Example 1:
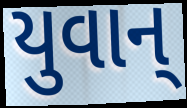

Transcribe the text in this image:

યુવાન્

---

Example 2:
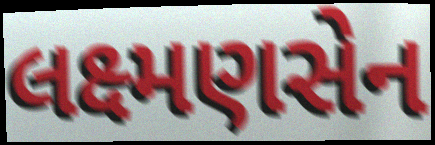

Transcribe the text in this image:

લક્ષ્મણસેન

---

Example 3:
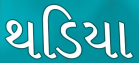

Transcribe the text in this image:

થડિયા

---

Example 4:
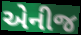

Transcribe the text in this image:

એનીજ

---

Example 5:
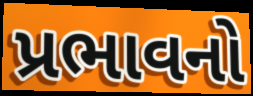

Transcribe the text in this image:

પ્રભાવનો